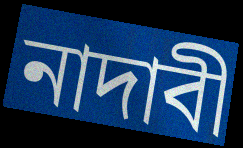
নাদাবী